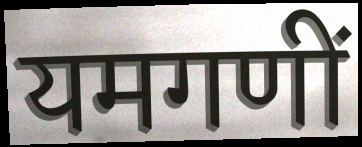
यमगणीं